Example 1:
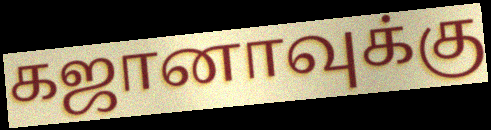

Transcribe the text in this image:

கஜானாவுக்கு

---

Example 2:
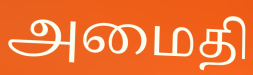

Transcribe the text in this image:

அமைதி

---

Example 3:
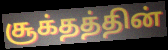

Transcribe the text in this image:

சூக்தத்தின்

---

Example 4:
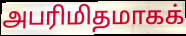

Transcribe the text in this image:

அபரிமிதமாகக்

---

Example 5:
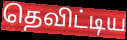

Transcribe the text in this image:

தெவிட்டிய